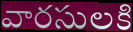
వారసులకి